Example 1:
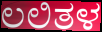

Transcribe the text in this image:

ಲಲಿತಳ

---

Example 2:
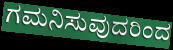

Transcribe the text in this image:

ಗಮನಿಸುವುದರಿಂದ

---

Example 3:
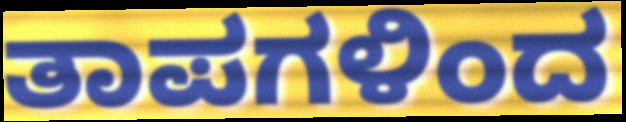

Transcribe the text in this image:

ತಾಪಗಳಿಂದ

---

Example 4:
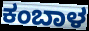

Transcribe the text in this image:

ಕಂಬಾಳ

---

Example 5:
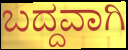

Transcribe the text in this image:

ಬದ್ದವಾಗಿ